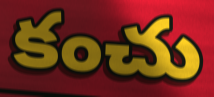
కంచు